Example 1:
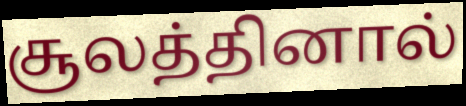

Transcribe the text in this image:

சூலத்தினால்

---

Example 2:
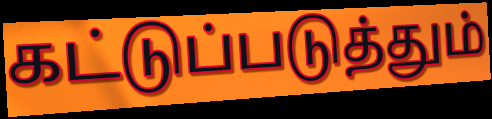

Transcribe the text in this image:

கட்டுப்படுத்தும்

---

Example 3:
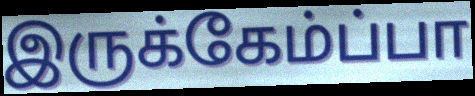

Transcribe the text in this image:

இருக்கேம்ப்பா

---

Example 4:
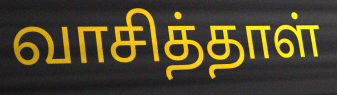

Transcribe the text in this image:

வாசித்தாள்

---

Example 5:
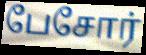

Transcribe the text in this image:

பேசோர்